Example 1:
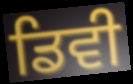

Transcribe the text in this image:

ਡਿਵੀ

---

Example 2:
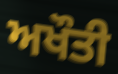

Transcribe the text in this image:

ਅਖੌਤੀ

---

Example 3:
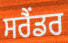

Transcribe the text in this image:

ਸਰੈਂਡਰ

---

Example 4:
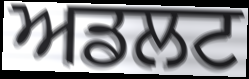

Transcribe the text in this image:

ਅਡਲਟ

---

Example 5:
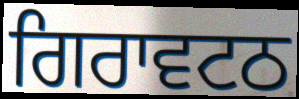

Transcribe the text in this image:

ਗਿਰਾਵਟਠ